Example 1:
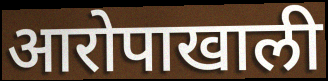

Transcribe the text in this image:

आरोपाखाली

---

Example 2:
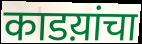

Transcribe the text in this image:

काडय़ांचा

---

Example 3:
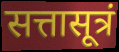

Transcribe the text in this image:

सत्तासूत्रं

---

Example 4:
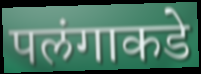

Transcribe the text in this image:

पलंगाकडे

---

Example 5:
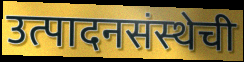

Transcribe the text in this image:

उत्पादनसंस्थेची